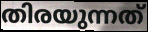
തിരയുന്നത്